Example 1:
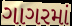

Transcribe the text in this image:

ગાગરમાં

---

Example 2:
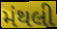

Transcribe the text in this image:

મંથલી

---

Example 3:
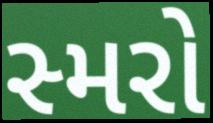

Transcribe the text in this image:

સ્મરો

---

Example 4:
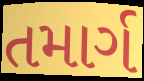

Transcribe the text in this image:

તમાર્ગ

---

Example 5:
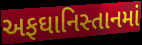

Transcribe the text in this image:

અફઘાનિસ્તાનમાં